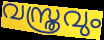
വസ്ത്രവും